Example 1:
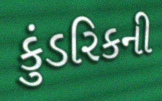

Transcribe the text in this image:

કુંડરિકની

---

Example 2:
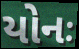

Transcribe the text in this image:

યોનઃ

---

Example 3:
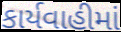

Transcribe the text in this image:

કાર્યવાહીમાં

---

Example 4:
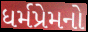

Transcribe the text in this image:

ધર્મપ્રેમનો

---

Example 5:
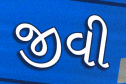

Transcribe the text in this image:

જીવી